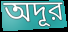
অদূর